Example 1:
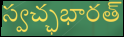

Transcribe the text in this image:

స్వచ్ఛభారత్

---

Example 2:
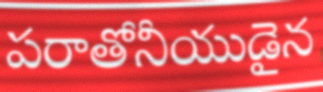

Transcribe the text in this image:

పరాతోనీయుడైన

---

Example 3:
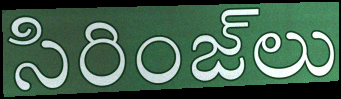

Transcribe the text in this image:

సిరింజ్‌లు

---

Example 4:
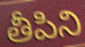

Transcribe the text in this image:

తీపిని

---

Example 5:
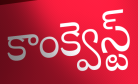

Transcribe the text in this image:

కాంక్వెస్ట్